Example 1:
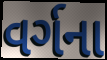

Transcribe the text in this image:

વર્ગના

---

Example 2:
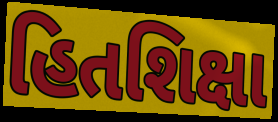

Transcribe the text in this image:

હિતશિક્ષા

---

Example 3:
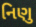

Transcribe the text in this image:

નિણુ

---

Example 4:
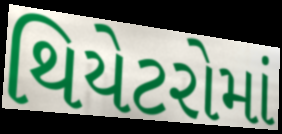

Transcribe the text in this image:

થિયેટરોમાં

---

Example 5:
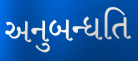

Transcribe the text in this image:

અનુબન્ધતિ